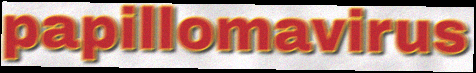
papillomavirus